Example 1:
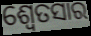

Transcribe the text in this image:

ଶ୍ଵେତସାର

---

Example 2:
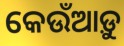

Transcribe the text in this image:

କେଉଁଆଡ଼ୁ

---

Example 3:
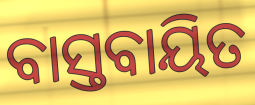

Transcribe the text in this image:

ବାସ୍ତବାୟିତ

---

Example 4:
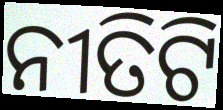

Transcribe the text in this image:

ନୀତିଟି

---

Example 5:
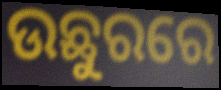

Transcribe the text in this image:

ଉଛୁରରେ